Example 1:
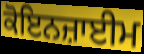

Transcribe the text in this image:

ਕੋਇਨਜ਼ਾਈਮ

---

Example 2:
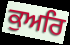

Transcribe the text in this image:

ਕੁਅਰਿ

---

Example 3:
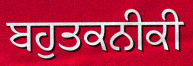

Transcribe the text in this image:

ਬਹੁਤਕਨੀਕੀ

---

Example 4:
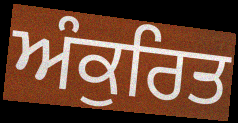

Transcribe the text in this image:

ਅੰਕੁਰਿਤ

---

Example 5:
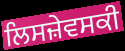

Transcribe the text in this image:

ਲਿਸਜ਼ੇਵਸਕੀ